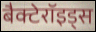
बैक्टेरॉइड्स